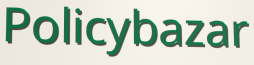
Policybazar